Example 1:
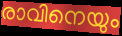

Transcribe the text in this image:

രാവിനെയും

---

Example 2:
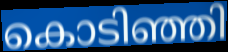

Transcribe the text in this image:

കൊടിഞ്ഞി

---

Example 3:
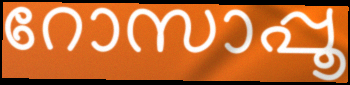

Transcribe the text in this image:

റോസാപ്പൂ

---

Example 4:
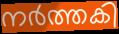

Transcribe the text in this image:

നർത്തകി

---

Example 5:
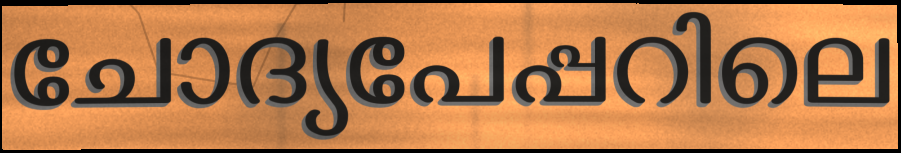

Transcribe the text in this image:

ചോദ്യപേപ്പറിലെ